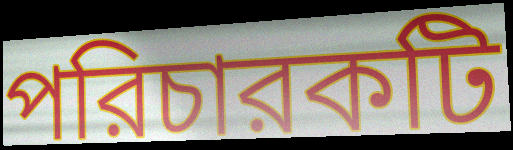
পরিচারকটি